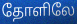
தோளிலே